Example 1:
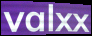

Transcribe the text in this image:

valxx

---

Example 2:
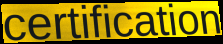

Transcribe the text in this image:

certification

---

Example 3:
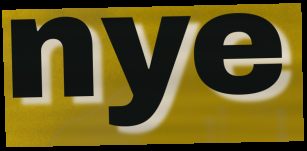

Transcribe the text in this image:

nye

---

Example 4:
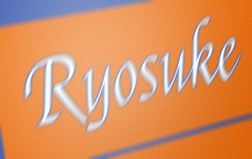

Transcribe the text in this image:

Ryosuke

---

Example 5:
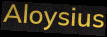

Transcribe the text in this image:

Aloysius